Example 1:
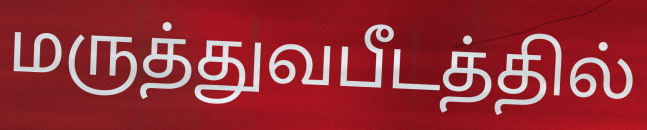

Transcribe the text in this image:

மருத்துவபீடத்தில்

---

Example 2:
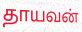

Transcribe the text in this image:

தாயவன்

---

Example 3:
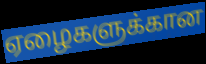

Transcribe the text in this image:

ஏழைகளுக்கான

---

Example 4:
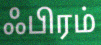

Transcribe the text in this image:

ஃபிரம்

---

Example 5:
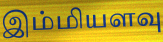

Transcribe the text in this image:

இம்மியளவு